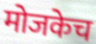
मोजकेच